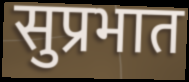
सुप्रभात